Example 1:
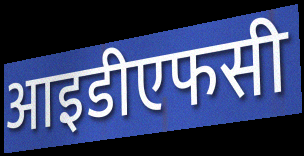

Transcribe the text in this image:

आइडीएफसी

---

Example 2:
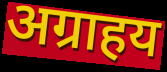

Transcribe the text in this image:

अग्राहय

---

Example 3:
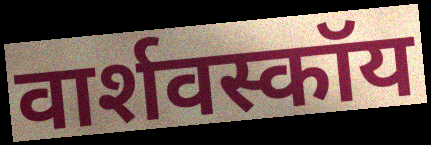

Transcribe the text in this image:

वार्शवस्कॉय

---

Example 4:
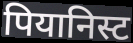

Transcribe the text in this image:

पियानिस्ट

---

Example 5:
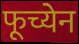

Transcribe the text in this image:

फूच्येन